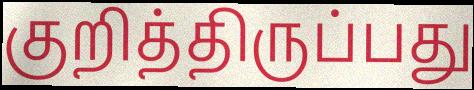
குறித்திருப்பது